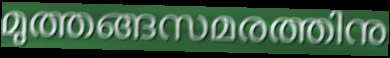
മുത്തങ്ങസമരത്തിനു